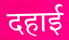
दहाई